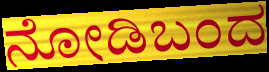
ನೋಡಿಬಂದ